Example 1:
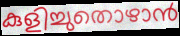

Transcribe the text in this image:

കുളിച്ചുതൊഴാൻ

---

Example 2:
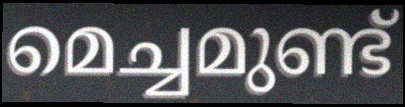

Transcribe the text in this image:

മെച്ചമുണ്ട്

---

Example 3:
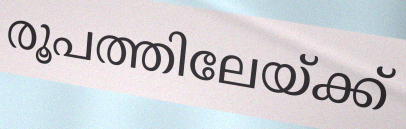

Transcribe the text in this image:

രൂപത്തിലേയ്ക്ക്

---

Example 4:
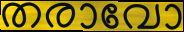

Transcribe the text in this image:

തരാവോ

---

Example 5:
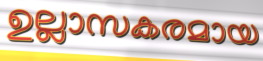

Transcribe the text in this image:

ഉല്ലാസകരമായ